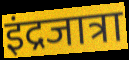
इंद्रजात्रा